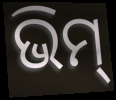
ଭିମ୍